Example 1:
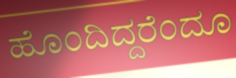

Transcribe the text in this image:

ಹೊಂದಿದ್ದರೆಂದೂ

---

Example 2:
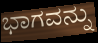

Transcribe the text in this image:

ಭಾಗವನ್ನು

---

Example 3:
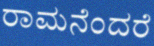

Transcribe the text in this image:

ರಾಮನೆಂದರೆ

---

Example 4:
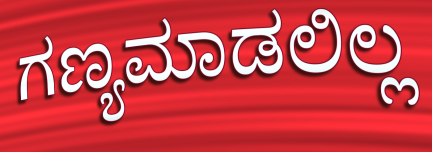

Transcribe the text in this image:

ಗಣ್ಯಮಾಡಲಿಲ್ಲ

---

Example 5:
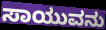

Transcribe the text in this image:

ಸಾಯುವನು